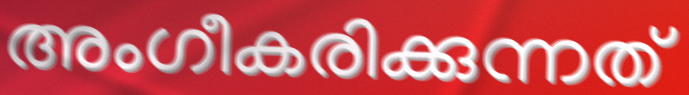
അംഗീകരിക്കുന്നത്